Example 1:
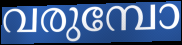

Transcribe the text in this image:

വരുമ്പോ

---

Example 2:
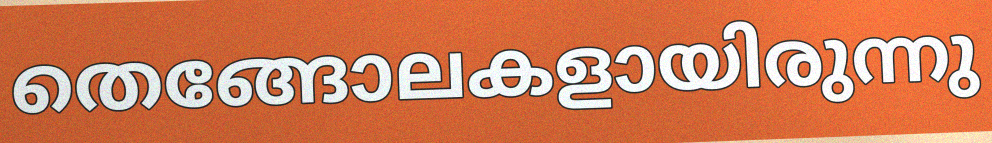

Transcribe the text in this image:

തെങ്ങോലകളായിരുന്നു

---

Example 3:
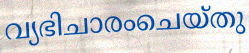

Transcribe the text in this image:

വ്യഭിചാരംചെയ്തു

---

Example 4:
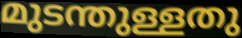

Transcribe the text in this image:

മുടന്തുള്ളതു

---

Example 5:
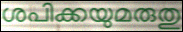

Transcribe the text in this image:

ശപിക്കയുമരുതു